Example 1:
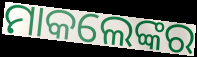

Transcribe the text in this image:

ମାକଲେଙ୍କର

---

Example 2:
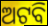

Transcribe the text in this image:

ଅଟବି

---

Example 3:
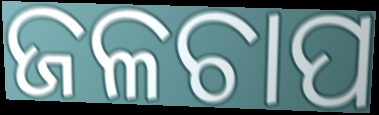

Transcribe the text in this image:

ଜଳଚାପ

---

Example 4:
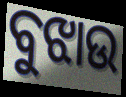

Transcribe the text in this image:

ବୁଝାଉ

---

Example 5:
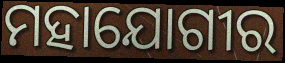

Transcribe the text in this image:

ମହାଯୋଗୀର